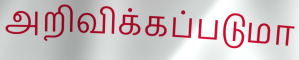
அறிவிக்கப்படுமா